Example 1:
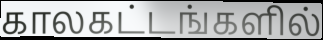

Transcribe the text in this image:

காலகட்டங்களில்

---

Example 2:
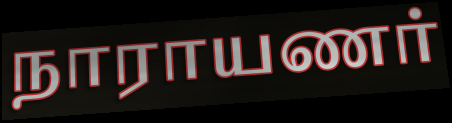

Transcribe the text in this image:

நாராயணர்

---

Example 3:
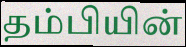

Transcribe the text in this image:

தம்பியின்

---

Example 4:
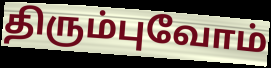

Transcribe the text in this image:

திரும்புவோம்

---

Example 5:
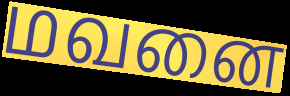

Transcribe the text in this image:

மவனை